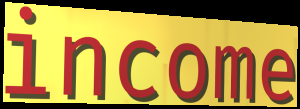
income